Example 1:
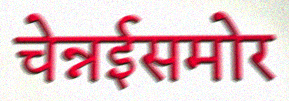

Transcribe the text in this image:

चेन्नईसमोर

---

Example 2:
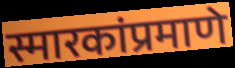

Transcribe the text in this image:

स्मारकांप्रमाणे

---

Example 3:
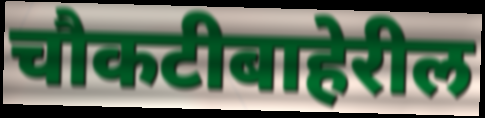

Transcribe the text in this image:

चौकटीबाहेरील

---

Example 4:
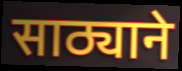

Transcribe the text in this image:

साठ्याने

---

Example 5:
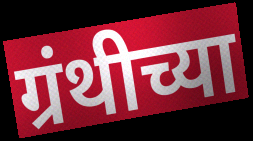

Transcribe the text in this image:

ग्रंथीच्या